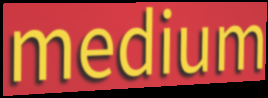
medium